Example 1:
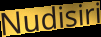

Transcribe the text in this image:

Nudisiri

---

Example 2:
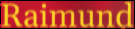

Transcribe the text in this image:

Raimund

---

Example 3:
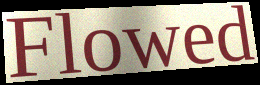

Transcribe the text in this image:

Flowed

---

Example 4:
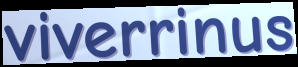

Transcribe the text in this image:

viverrinus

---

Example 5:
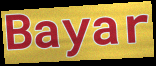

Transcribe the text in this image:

Bayar